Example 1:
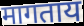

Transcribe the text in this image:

मागताय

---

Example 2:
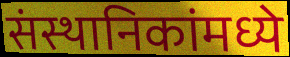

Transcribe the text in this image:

संस्थानिकांमध्ये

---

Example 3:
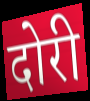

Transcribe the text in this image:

दोरी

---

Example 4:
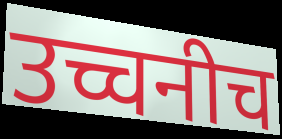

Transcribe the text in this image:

उच्चनीच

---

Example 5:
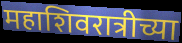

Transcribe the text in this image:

महाशिवरात्रीच्या